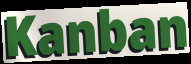
Kanban